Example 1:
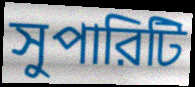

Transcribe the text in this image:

সুপারিটি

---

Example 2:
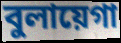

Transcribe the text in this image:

বুলায়েগা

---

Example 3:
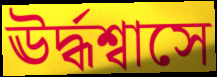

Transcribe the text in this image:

ঊর্দ্ধশ্বাসে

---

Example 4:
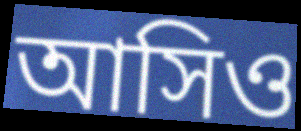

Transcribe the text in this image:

আসিও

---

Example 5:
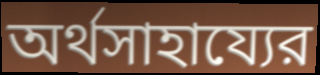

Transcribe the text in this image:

অর্থসাহায্যের